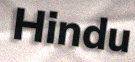
Hindu